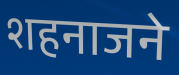
शहनाजने